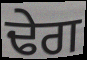
ਢੇਗ